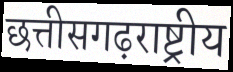
छत्तीसगढ़राष्ट्रीय